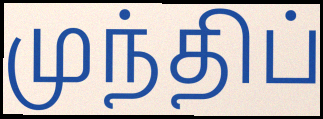
முந்திப்